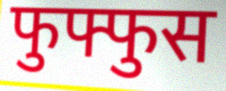
फुफ्फुस